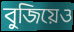
বুজিয়েও